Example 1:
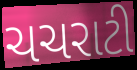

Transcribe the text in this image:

ચચરાટી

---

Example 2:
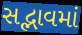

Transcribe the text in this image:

સદ્ભાવમાં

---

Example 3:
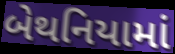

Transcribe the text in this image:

બેથનિયામાં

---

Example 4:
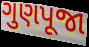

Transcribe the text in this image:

ગુણપૂજા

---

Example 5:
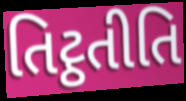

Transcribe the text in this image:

તિટ્ઠતીતિ